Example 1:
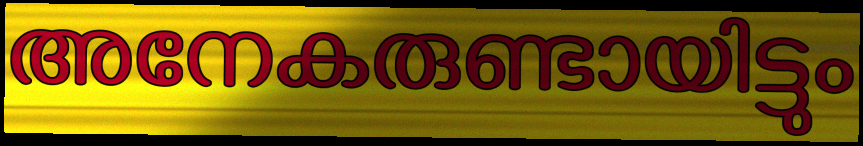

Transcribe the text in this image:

അനേകരുണ്ടായിട്ടും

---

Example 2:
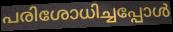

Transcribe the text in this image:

പരിശോധിച്ചപ്പോൾ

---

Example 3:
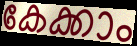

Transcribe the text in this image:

കേക്കാം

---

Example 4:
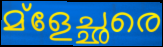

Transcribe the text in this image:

മ്ളേച്ഛരെ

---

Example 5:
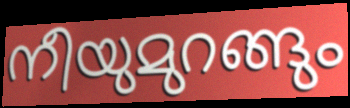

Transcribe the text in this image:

നീയുമുറങ്ങും